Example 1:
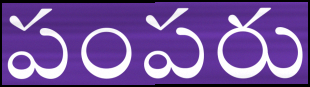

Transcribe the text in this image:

పంపరు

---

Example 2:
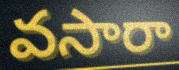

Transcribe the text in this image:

వసారా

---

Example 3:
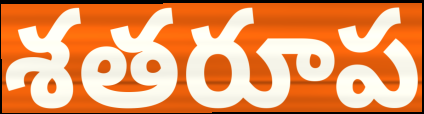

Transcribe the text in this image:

శతరూప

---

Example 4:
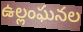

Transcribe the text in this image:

ఉల్లంఘనల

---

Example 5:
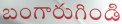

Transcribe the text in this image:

బంగారుగిండి